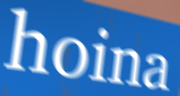
hoina